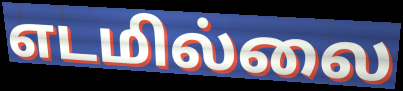
எடமில்லை